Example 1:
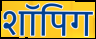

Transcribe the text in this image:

शॉपिग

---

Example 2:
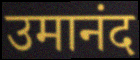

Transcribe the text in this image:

उमानंद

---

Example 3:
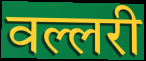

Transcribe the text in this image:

वल्लरी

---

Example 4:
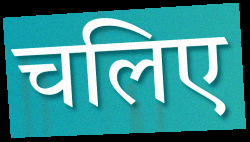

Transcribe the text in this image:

चलिए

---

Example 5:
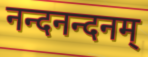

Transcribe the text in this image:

नन्दनन्दनम्